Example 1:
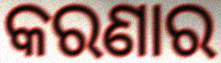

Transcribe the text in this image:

କରଣାର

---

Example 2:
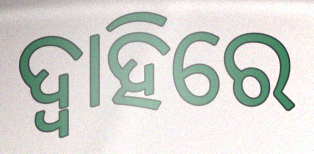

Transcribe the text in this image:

ଦ୍ୱାହିରେ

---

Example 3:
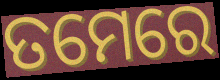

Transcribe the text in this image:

ତମେରେ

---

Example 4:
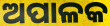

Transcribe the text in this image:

ଅପାଳକ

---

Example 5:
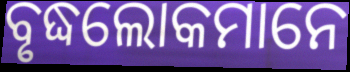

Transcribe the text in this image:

ବୃଦ୍ଧଲୋକମାନେ